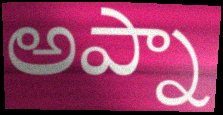
అప్నా